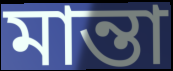
মান্তা